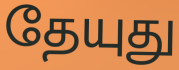
தேயுது